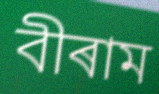
বীৰাম